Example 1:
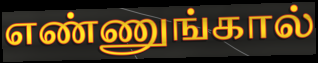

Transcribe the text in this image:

எண்ணுங்கால்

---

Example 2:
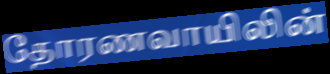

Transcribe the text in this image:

தோரணவாயிலின்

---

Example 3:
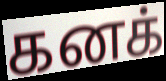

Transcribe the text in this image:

கனக்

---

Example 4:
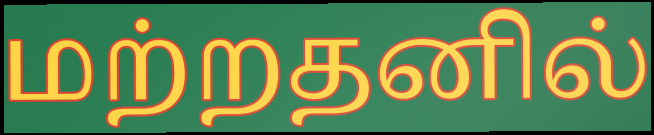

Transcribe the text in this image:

மற்றதனில்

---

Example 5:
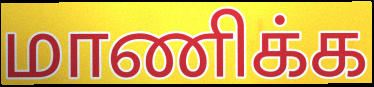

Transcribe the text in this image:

மாணிக்க